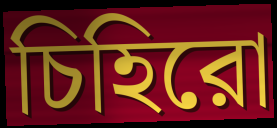
চিহিরো